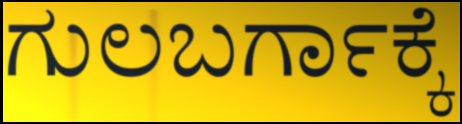
ಗುಲಬರ್ಗಾಕ್ಕೆ